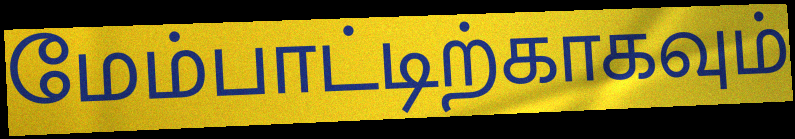
மேம்பாட்டிற்காகவும்